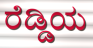
ರೆಡ್ಡಿಯ